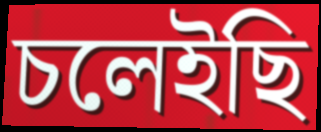
চলেইছি